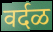
वर्दळ